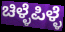
ಚಿಳ್ಳೆಪಿಳ್ಳೆ